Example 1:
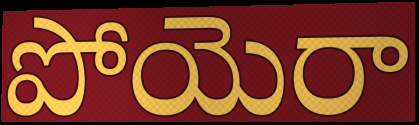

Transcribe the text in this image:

పోయెరా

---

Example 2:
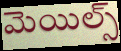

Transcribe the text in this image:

మెయిల్స్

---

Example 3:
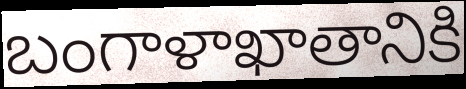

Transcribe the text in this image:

బంగాళాఖాతానికి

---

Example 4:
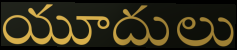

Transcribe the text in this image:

యూదులు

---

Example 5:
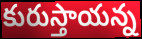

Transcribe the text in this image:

కురుస్తాయన్న